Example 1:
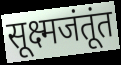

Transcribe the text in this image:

सूक्ष्मजंतूंत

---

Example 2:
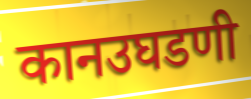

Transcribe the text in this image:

कानउघडणी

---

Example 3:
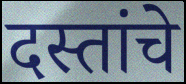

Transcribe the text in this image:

दस्तांचे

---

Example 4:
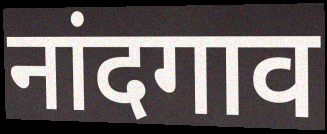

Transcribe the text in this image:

नांदगाव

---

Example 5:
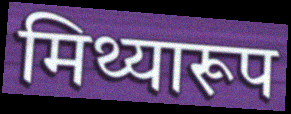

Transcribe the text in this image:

मिथ्यारूप